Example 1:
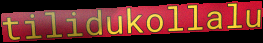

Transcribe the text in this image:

tilidukollalu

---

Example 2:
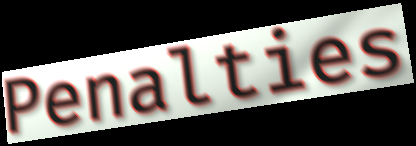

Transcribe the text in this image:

Penalties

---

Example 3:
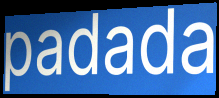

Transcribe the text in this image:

padada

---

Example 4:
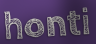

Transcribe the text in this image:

honti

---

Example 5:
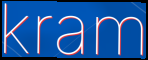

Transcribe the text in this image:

kram